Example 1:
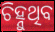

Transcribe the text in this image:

ଚିହ୍ନୁଥିବ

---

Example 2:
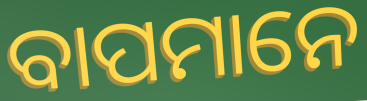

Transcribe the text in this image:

ବାପମାନେ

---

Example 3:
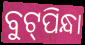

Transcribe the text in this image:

ବୁଟ୍‌ପିନ୍ଧା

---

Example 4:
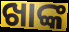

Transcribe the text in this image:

ଖାଙ୍କ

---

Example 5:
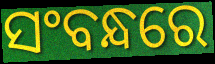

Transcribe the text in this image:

ସଂବନ୍ଧରେ